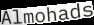
Almohads